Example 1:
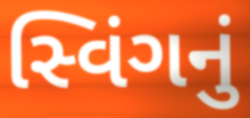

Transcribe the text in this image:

સ્વિંગનું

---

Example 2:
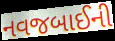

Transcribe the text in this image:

નવજબાઈની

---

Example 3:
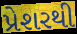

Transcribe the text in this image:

પ્રેશરથી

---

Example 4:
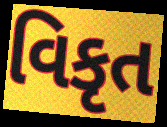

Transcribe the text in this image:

વિકૃત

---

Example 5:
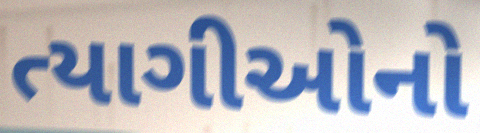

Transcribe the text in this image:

ત્યાગીઓનો